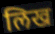
लिख